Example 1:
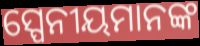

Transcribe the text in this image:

ସ୍ପେନୀୟମାନଙ୍କ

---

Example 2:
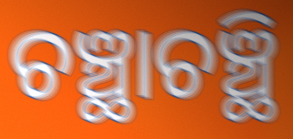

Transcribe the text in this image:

ଚଞ୍ଛାଚଞ୍ଛି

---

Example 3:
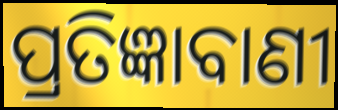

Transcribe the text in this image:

ପ୍ରତିଜ୍ଞାବାଣୀ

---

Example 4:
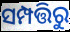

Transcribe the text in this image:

ସମ୍ପତ୍ତିରୁ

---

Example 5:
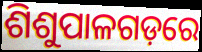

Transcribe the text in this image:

ଶିଶୁପାଳଗଡ଼ରେ